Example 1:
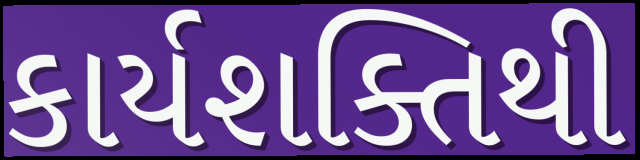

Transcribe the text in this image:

કાર્યશક્તિથી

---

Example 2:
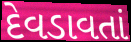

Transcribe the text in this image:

દેવડાવતાં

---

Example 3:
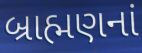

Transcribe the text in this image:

બ્રાહ્મણનાં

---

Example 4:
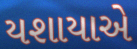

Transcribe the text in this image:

યશાયાએ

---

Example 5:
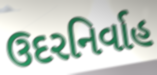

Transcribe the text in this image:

ઉદરનિર્વાહ